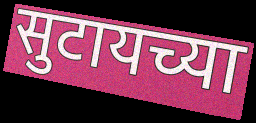
सुटायच्या